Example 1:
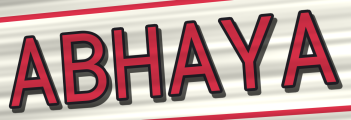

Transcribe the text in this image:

ABHAYA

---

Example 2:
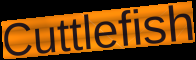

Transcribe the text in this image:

Cuttlefish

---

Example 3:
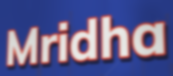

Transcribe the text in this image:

Mridha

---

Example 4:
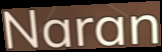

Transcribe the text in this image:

Naran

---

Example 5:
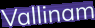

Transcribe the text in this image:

Vallinam